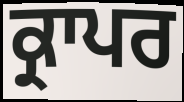
ਕ੍ਰਾਪਰ